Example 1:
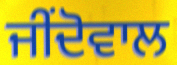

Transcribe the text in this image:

ਜੀਂਦੋਵਾਲ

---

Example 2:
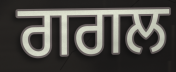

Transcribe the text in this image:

ਗਗਲ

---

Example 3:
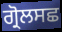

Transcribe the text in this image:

ਗ੍ਰੋਲਸਛ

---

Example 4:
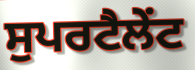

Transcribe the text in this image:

ਸੁਪਰਟੈਲੇਂਟ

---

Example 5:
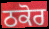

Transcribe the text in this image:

ਠਕੋਰ